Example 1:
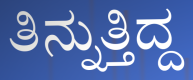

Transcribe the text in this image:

ತಿನ್ನುತ್ತಿದ್ದ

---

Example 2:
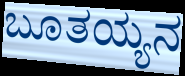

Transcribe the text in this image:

ಬೂತಯ್ಯನ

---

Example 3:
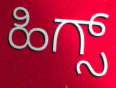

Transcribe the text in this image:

ಹಿಗ್ಸ್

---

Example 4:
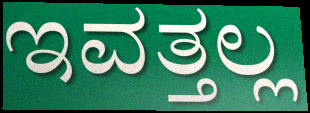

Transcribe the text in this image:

ಇವತ್ತಲ್ಲ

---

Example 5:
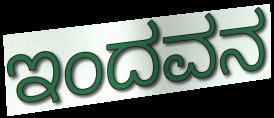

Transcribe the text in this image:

ಇಂದವನ